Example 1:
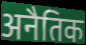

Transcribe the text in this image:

अनैतिक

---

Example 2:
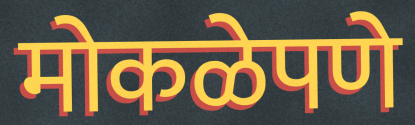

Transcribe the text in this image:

मोकळेपणे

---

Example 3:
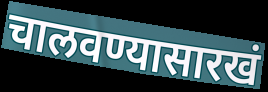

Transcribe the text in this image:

चालवण्यासारखं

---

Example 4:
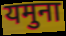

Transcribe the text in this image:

यमुना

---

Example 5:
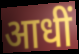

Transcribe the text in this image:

आधीं